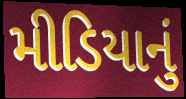
મીડિયાનું